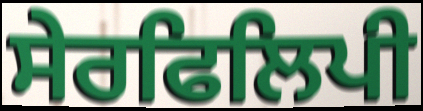
ਸੇਰਫਿਲਿਪੀ